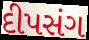
દીપસંગ